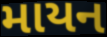
માયન